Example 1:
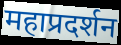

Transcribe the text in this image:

महाप्रदर्शन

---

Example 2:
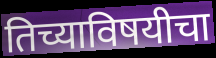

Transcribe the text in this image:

तिच्याविषयीचा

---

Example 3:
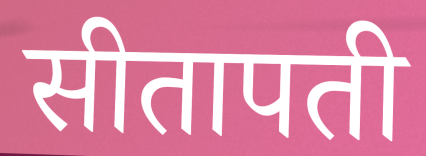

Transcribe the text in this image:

सीतापती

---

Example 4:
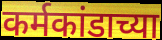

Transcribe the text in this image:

कर्मकांडाच्या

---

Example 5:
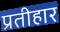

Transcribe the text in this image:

प्रतीहार